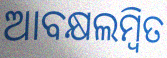
ଆବକ୍ଷଲମ୍ବିତ